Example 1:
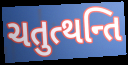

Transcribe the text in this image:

ચતુત્થન્તિ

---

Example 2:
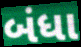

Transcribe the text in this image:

બંધા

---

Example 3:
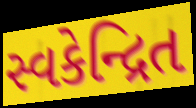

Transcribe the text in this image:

સ્વકેન્દ્રિત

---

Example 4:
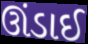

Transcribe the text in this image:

ઊંડાઈ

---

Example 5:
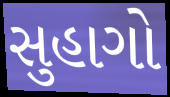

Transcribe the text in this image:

સુહાગો